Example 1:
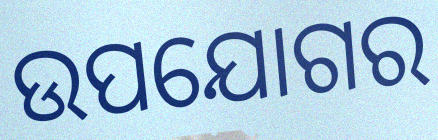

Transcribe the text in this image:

ଉପଯୋଗର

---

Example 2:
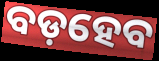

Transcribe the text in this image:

ବଡ଼ହେବ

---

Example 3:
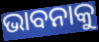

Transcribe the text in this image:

ଭାବନାକୁ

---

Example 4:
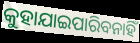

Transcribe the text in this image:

କୁହାଯାଇପାରିବନାହିଁ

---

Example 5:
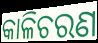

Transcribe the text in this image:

କାଳିଚରଣ